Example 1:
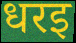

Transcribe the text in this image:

धरइ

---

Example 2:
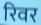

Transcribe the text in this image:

रिवर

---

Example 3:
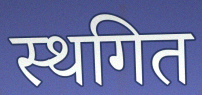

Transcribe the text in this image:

स्थगित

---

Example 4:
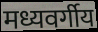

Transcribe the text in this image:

मध्यवर्गीय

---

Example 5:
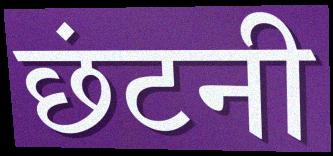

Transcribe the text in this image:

छंटनी